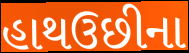
હાથઉછીના